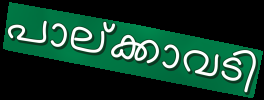
പാല്ക്കാവടി